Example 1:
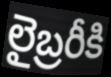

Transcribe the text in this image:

లైబ్రరీకి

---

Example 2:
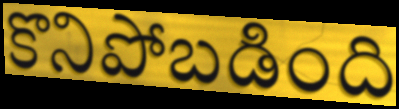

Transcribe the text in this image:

కొనిపోబడింది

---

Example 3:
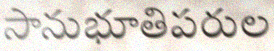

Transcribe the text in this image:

సానుభూతిపరుల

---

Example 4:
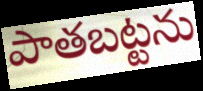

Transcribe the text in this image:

పాతబట్టను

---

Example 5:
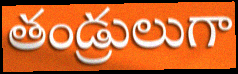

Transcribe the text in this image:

తండ్రులుగా